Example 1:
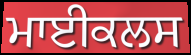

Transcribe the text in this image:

ਮਾਈਕਲਸ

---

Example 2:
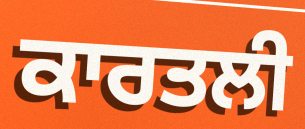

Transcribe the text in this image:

ਕਾਰਤਲੀ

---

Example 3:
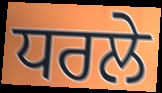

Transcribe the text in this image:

ਧਰਲੇ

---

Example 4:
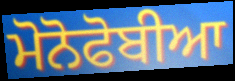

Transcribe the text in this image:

ਮੋਨੋਫੋਬੀਆ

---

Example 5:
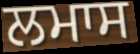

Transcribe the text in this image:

ਲਮਾਸ